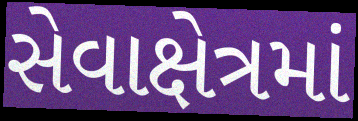
સેવાક્ષેત્રમાં